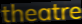
theatre